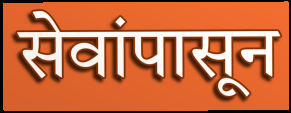
सेवांपासून